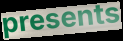
presents